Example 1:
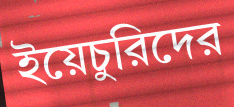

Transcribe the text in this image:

ইয়েচুরিদের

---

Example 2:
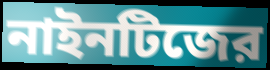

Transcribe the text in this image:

নাইনটিজের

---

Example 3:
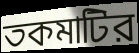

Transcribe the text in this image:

তকমাটির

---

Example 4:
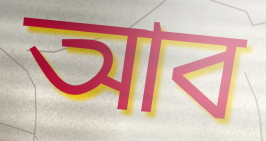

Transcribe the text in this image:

আব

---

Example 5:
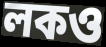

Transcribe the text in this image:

লকও